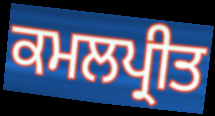
ਕਮਲਪ੍ਰੀਤ